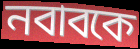
নবাবকে